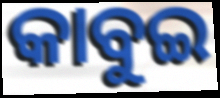
କାବୁଇ